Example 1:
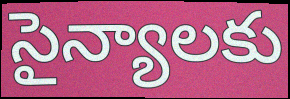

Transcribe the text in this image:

సైన్యాలకు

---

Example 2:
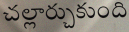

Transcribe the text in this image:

చల్లార్చుకుంది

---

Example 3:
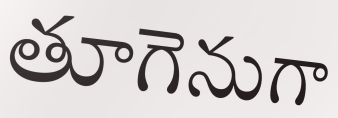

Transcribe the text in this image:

తూగెనుగా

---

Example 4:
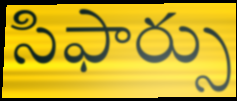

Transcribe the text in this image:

సిఫార్సు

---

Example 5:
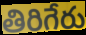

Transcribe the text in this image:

తిరిగేరు